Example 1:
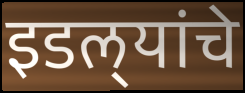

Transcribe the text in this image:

इडल्यांचे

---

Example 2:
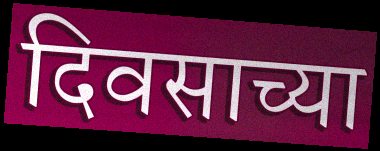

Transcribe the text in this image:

दिवसाच्या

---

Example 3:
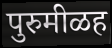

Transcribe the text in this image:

पुरुमीळह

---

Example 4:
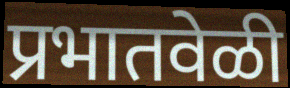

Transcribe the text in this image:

प्रभातवेळी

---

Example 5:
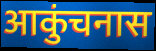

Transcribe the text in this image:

आकुंचनास